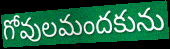
గోవులమందకును